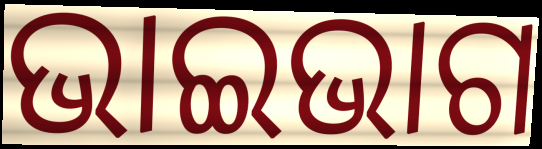
ଭାଇଭାଗ